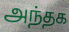
அந்தக